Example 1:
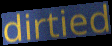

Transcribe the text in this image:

dirtied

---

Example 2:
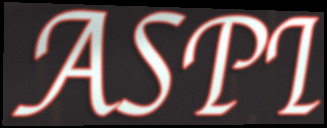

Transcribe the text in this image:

ASPI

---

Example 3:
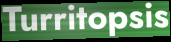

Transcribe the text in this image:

Turritopsis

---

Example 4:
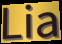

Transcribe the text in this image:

Lia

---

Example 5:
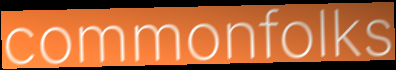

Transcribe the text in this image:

commonfolks